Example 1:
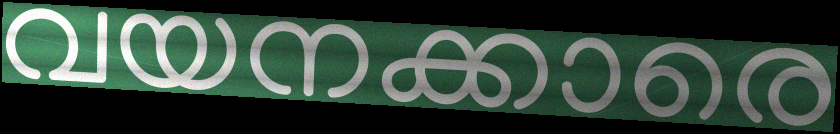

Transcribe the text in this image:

വയനക്കാരെ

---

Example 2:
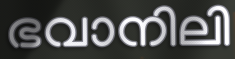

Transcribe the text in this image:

ഭവാനിലി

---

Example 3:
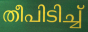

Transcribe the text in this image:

തീപിടിച്ച്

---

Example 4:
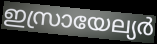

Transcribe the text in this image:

ഇസ്രായേല്യർ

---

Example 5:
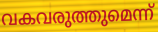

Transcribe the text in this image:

വകവരുത്തുമെന്ന്